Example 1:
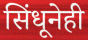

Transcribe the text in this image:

सिंधूनेही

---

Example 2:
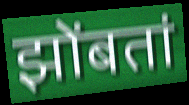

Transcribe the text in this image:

झोंबतां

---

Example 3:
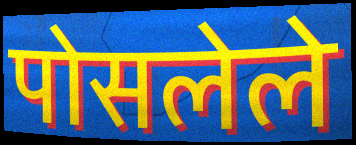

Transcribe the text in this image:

पोसलेले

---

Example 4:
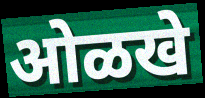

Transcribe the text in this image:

ओळखे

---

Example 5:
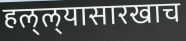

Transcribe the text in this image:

हल्ल्यासारखाच